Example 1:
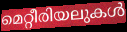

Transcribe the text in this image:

മെറ്റീരിയലുകൾ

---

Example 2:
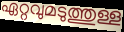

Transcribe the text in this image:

ഏറ്റവുമടുത്തുള്ള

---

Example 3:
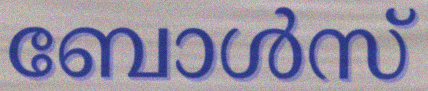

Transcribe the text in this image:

ബോൾസ്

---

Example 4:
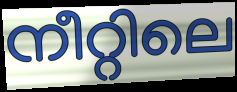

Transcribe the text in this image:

നീറ്റിലെ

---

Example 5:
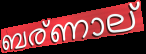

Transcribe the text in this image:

ബര്ണാല്